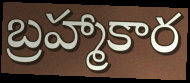
బ్రహ్మాకార